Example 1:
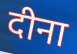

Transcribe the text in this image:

दीना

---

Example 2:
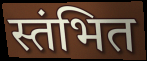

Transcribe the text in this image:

स्तंभित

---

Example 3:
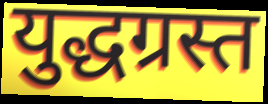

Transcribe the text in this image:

युद्धग्रस्त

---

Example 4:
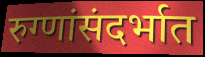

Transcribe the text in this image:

रुग्णांसंदर्भात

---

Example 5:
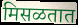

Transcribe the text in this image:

मिसळतात